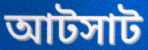
আটসাট